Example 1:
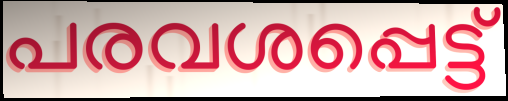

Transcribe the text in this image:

പരവശപ്പെട്ട്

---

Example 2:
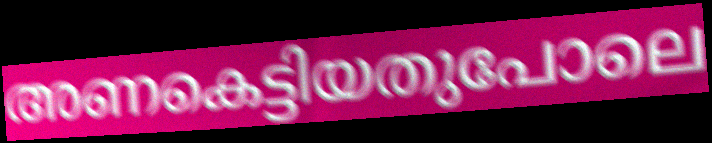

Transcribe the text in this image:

അണകെട്ടിയതുപോലെ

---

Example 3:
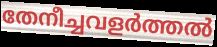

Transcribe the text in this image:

തേനീച്ചവളർത്തൽ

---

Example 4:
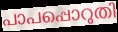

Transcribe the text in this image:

പാപപ്പൊറുതി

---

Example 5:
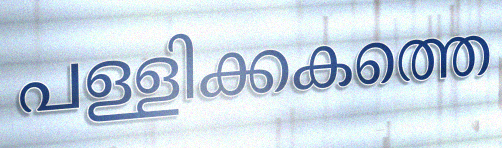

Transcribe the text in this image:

പള്ളിക്കകത്തെ